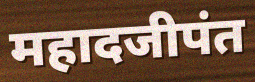
महादजीपंत